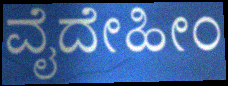
ವೈದೇಹೀಂ